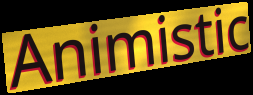
Animistic